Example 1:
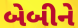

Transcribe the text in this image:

બેબીને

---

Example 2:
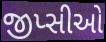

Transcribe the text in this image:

જીપ્સીઓ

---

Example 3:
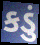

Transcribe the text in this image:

કડું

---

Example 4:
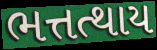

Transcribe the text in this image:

ભત્તત્થાય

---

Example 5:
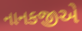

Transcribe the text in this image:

નાનકજીએ